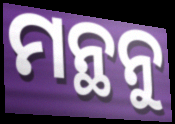
ମନ୍ଥନୁ